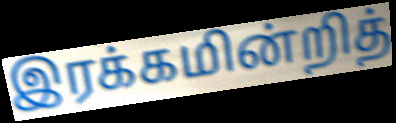
இரக்கமின்றித்